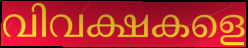
വിവക്ഷകളെ